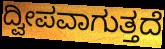
ದ್ವೀಪವಾಗುತ್ತದೆ